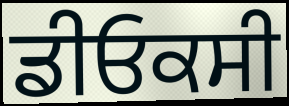
ਡੀਓਕਸੀ